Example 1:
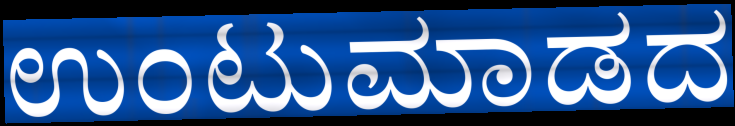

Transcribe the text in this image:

ಉಂಟುಮಾಡದ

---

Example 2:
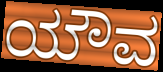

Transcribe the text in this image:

ಯೌವ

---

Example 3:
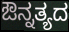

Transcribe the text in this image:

ಔನ್ನತ್ಯದ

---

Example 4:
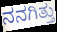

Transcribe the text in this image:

ನನಗಿತ್ತು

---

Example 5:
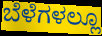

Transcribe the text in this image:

ಬೆಳೆಗಳಲ್ಲೂ